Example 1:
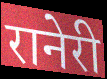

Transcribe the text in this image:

रानेरी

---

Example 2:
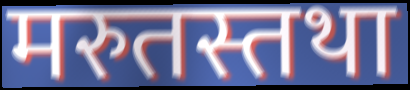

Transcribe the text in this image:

मरुतस्तथा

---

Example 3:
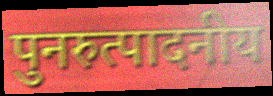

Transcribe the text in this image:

पुनरुत्पादनीय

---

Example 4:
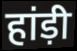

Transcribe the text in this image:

हांड़ी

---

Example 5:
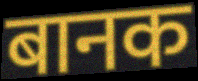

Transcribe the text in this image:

बानक